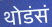
थोडंसं